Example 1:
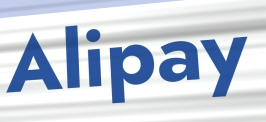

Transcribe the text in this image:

Alipay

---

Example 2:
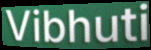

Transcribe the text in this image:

Vibhuti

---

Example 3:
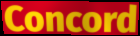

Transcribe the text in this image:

Concord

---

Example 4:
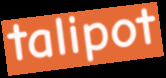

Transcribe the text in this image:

talipot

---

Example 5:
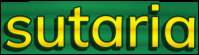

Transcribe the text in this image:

sutaria